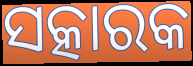
ସତ୍କାରକ